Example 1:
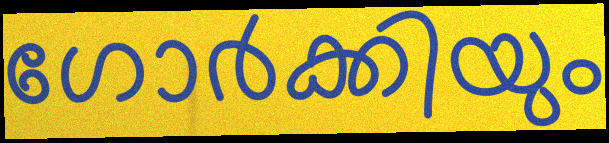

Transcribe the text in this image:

ഗോർക്കിയും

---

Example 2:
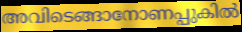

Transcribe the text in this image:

അവിടെങ്ങാനോണപ്പുകിൽ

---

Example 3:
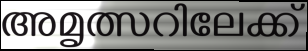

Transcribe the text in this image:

അമൃത്സറിലേക്ക്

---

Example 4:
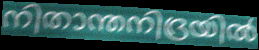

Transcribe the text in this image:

നിതാന്തനിദ്രയിൽ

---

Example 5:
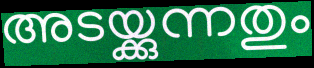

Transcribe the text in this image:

അടയ്ക്കുന്നതും